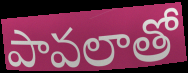
పావలాతో